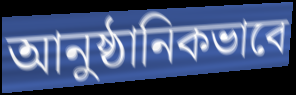
আনুষ্ঠানিকভাবে